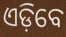
ଏଡ଼ିବେ